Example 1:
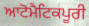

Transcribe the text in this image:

ਆਟੋਮੈਟਿਕਪੂਰੀ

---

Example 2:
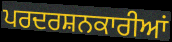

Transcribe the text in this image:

ਪਰਦਰਸ਼ਨਕਾਰੀਆਂ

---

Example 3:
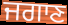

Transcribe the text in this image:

ਜਗਾਣ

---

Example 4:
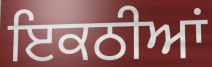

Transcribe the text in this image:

ਇਕਠੀਆਂ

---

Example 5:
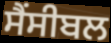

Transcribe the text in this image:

ਸੈਂਸੀਬਲ